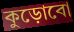
কুড়োবো